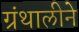
ग्रंथालीने